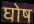
घोष